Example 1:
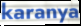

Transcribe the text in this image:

karanya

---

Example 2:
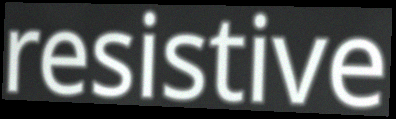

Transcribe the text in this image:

resistive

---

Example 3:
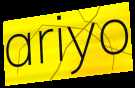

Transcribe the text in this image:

ariyo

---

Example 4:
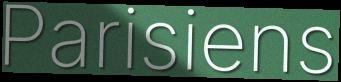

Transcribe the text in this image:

Parisiens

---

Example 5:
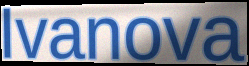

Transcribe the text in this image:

Ivanova